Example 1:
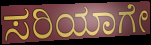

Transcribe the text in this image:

ಸರಿಯಾಗೇ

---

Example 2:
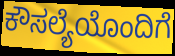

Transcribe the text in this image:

ಕೌಸಲ್ಯೆಯೊಂದಿಗೆ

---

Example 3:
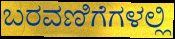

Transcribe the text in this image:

ಬರವಣಿಗೆಗಳಲ್ಲಿ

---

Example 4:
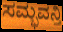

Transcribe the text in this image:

ಸಮ್ಭವನ್ತಿ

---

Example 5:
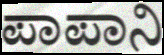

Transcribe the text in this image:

ಪಾಪಾನಿ